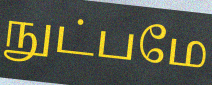
நுட்பமே